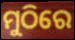
ମୁଠିରେ